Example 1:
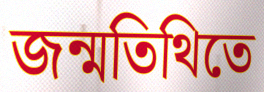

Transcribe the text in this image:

জন্মতিথিতে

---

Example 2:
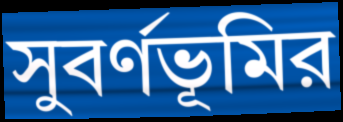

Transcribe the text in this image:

সুবর্ণভূমির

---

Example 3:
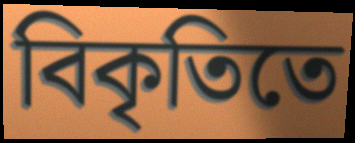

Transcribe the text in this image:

বিকৃতিতে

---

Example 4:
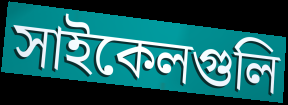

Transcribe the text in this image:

সাইকেলগুলি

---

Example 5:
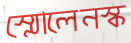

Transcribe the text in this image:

স্মোলেনস্ক